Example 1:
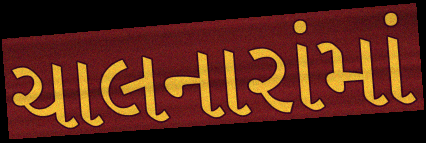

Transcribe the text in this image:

ચાલનારાંમાં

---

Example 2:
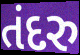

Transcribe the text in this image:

તંદરુ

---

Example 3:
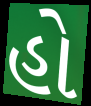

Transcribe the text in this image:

હો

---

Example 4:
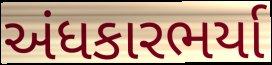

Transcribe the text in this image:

અંધકારભર્યા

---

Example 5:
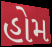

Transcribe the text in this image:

હોમ